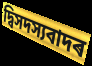
দ্বিসদস্যবাদৰ